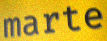
marte